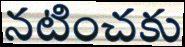
నటించకు